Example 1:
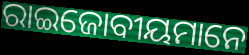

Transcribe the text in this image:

ରାଇଜୋବୀୟମାନେ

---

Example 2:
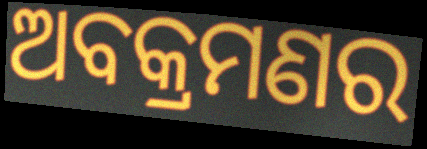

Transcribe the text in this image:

ଅବକ୍ରମଣର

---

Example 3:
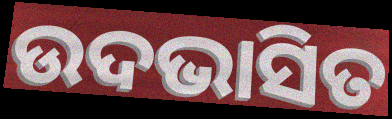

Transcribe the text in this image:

ଉଦଭାସିତ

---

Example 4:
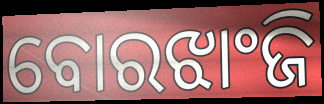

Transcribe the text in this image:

ବୋରଝାଂଜି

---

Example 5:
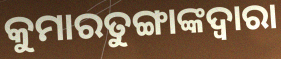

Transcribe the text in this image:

କୁମାରତୁଙ୍ଗାଙ୍କଦ୍ୱାରା